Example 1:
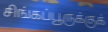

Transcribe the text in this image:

சிங்கப்பூருக்குக்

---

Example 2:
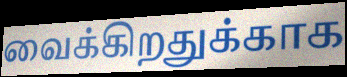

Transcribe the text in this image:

வைக்கிறதுக்காக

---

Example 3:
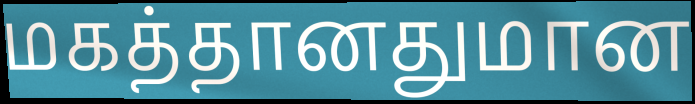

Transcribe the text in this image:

மகத்தானதுமான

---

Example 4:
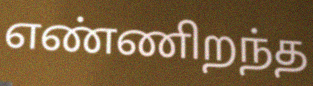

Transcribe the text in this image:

எண்ணிறந்த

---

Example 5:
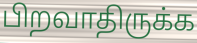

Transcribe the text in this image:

பிறவாதிருக்க